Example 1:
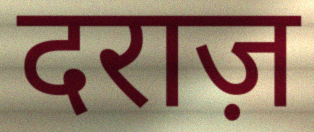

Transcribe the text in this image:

दराज़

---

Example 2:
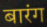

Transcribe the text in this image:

बारंग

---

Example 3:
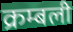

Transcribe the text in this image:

क्रम्बली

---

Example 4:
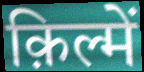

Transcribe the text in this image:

क़िल्में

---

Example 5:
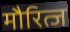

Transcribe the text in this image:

मौरित्ज